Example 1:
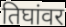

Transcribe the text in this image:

तिघांवर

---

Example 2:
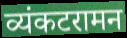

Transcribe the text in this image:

व्यंकटरामन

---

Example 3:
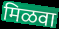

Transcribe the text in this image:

मिळवा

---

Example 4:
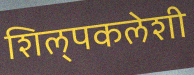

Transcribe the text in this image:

शिल्पकलेशी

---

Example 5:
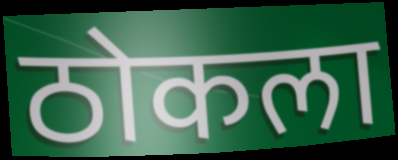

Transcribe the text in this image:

ठोकला